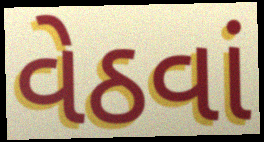
વેઠવાં